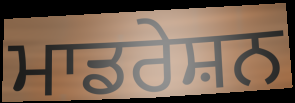
ਮਾਡਰੇਸ਼ਨ